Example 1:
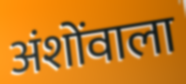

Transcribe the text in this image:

अंशोंवाला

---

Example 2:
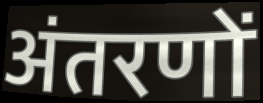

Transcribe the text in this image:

अंतरणों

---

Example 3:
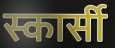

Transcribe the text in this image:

स्कार्सी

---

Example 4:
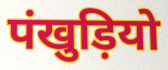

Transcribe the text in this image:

पंखुड़ियो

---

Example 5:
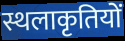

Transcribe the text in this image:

स्थलाकृतियों